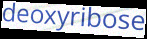
deoxyribose